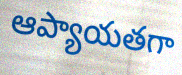
ఆప్యాయతగా